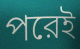
পরেই